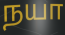
நயா